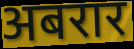
अबरार